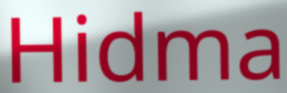
Hidma